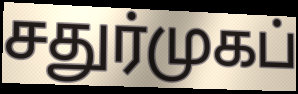
சதுர்முகப்